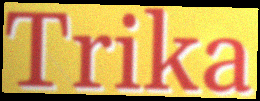
Trika